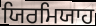
ਯਿਰਮਿਯਾਹ